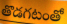
తొడగటంతో